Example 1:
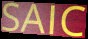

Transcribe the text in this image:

SAIC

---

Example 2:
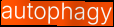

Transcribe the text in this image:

autophagy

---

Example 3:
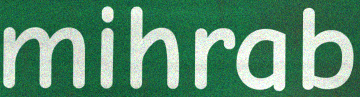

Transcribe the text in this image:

mihrab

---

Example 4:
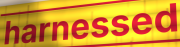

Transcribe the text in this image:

harnessed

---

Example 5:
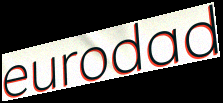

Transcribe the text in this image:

eurodad